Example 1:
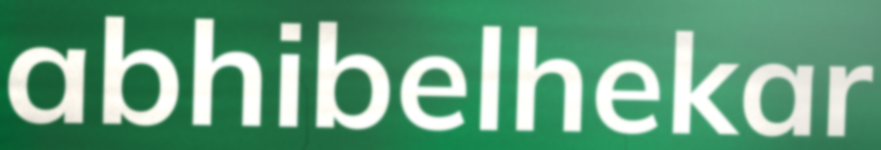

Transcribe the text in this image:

abhibelhekar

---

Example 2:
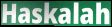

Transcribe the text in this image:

Haskalah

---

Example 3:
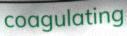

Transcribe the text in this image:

coagulating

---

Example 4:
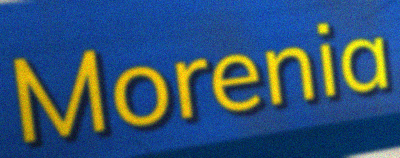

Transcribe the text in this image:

Morenia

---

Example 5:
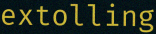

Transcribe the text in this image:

extolling